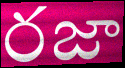
రజా